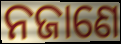
ନଜାଣେ